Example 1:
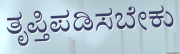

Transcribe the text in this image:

ತೃಪ್ತಿಪಡಿಸಬೇಕು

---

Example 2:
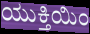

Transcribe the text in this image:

ಯುಕ್ತಿಯಿಂ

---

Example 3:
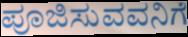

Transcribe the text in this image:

ಪೂಜಿಸುವವನಿಗೆ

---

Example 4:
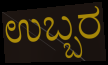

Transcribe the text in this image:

ಉಬ್ಬರ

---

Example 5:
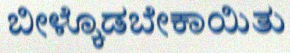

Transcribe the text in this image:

ಬೀಳ್ಕೊಡಬೇಕಾಯಿತು